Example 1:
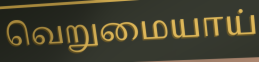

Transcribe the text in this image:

வெறுமையாய்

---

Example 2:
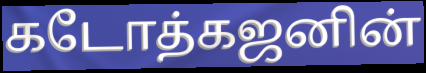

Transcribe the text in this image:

கடோத்கஜனின்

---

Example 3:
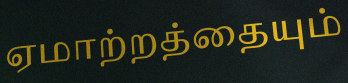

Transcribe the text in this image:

ஏமாற்றத்தையும்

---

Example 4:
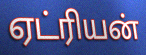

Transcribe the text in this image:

ஏட்ரியன்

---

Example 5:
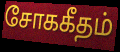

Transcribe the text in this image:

சோககீதம்